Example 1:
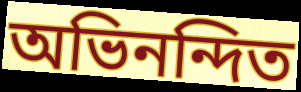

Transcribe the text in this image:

অভিনন্দিত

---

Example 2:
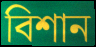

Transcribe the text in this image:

বিশান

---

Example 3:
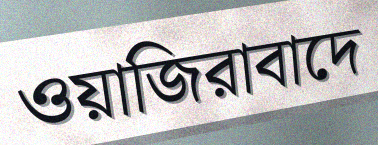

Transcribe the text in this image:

ওয়াজিরাবাদে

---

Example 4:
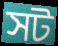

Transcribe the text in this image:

সট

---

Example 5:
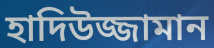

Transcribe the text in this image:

হাদিউজ্জামান